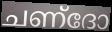
ചണ്ദോ